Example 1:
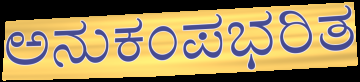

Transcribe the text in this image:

ಅನುಕಂಪಭರಿತ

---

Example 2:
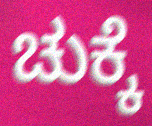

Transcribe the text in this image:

ಚುಕ್ಕೆ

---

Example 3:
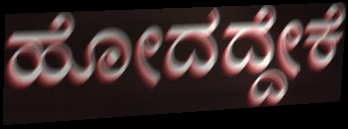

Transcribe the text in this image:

ಹೋದದ್ದೇಕೆ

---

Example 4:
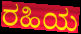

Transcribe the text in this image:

ರಹಿಯ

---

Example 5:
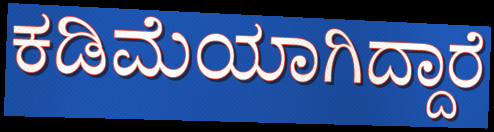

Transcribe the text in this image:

ಕಡಿಮೆಯಾಗಿದ್ದಾರೆ